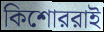
কিশোররাই